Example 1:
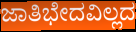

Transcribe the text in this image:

ಜಾತಿಭೇದವಿಲ್ಲದ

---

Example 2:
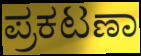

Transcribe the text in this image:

ಪ್ರಕಟಣಾ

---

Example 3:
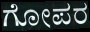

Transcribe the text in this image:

ಗೋಪರ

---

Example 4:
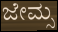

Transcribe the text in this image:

ಜೇಮ್ಸ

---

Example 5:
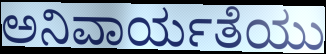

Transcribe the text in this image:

ಅನಿವಾರ್ಯತೆಯು